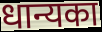
धान्यका